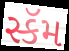
સ્કૅમ